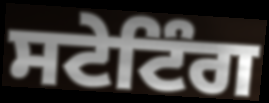
ਸਟੇਟਿੰਗ